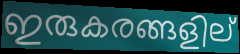
ഇരുകരങ്ങളില്